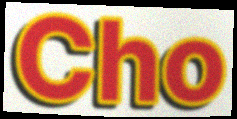
Cho